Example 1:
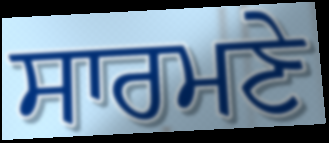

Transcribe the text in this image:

ਸਾਰਮਣੇ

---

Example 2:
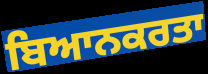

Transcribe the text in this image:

ਬਿਆਨਕਰਤਾ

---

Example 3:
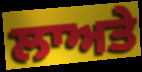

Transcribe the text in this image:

ਲਾਅਤੇ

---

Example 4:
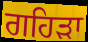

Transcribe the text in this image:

ਗਹਿੜਾ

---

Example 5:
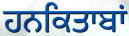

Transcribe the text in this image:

ਹਨਕਿਤਾਬਾਂ